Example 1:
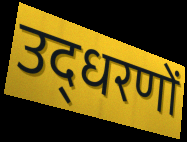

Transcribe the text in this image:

उद्धरणों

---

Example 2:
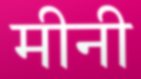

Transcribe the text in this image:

मीनी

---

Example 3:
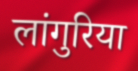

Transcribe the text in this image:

लांगुरिया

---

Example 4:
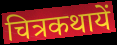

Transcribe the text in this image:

चित्रकथायें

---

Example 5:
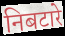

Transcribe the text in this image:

निबटारे